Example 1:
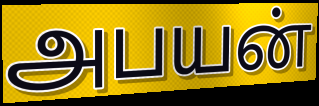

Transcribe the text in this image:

அபயன்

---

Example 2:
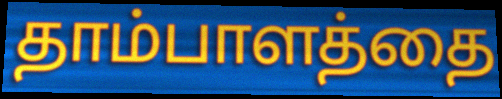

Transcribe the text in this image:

தாம்பாளத்தை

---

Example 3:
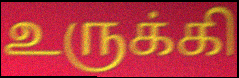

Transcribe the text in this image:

உருக்கி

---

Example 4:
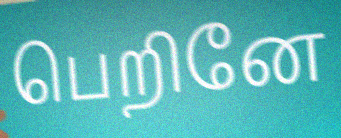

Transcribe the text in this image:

பெறினே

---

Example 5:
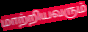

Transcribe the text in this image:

மாற்றியவரும்